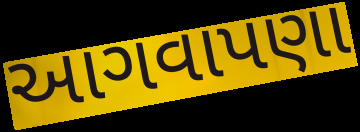
આગવાપણા